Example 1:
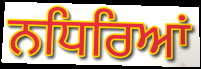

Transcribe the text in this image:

ਨਧਿਰਿਆਂ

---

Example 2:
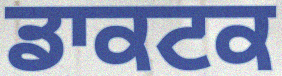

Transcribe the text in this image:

ਡਾਕਟਕ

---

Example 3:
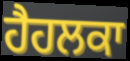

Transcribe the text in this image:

ਹੈਹਲਕਾ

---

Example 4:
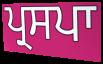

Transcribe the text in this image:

ਪ੍ਰਸਪਾ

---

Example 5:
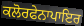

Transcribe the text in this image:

ਕਲੋਰਫੇਨਾਪਾਇਰ